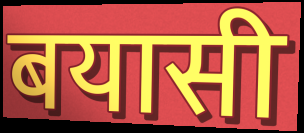
बयासी